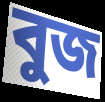
বুজ